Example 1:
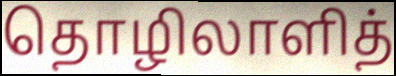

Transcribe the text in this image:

தொழிலாளித்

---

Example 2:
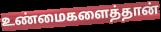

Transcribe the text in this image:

உண்மைகளைத்தான்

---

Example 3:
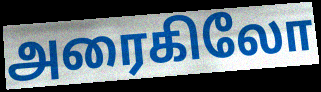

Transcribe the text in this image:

அரைகிலோ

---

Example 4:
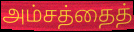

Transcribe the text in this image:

அம்சத்தைத்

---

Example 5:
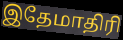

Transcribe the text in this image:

இதேமாதிரி